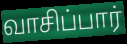
வாசிப்பார்